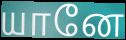
யானே